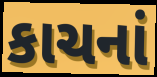
કાચનાં